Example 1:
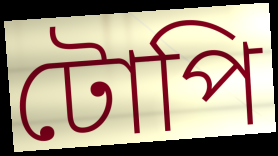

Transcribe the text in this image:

টোপি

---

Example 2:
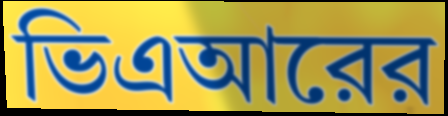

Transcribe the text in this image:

ভিএআরের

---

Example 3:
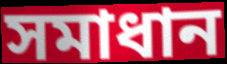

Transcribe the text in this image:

সমাধান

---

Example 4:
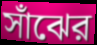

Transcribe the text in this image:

সাঁঝের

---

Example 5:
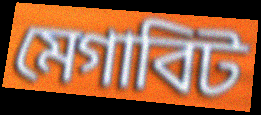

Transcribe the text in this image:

মেগাবিট